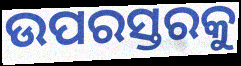
ଉପରସ୍ତରକୁ